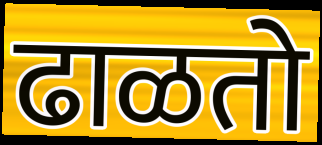
ढाळतो